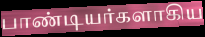
பாண்டியர்களாகிய